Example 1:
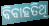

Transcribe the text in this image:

ବିବାହତିଥି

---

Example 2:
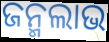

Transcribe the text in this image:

ଜନ୍ମଲାଭ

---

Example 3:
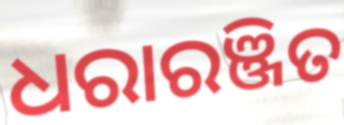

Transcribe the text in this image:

ଧରାରଞ୍ଜିତ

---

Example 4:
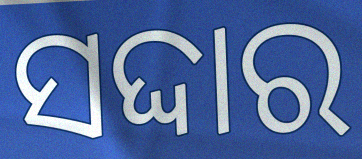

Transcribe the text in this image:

ସଦ୍ଦାର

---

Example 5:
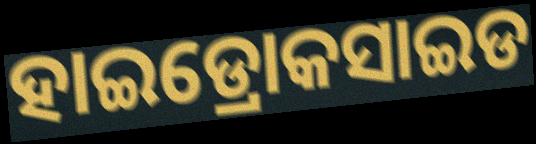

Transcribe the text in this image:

ହାଇଡ୍ରୋକସାଇଡ